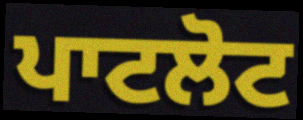
ਪਾਟਲੋਟ